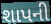
શાપની